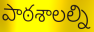
పాఠశాలల్ని